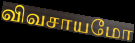
விவசாயமோ